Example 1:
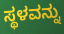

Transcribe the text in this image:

ಸ್ಥಳವನ್ನು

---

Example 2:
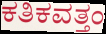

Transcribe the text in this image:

ಕತಿಕವತ್ತಂ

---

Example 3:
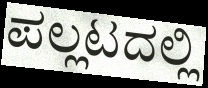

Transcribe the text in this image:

ಪಲ್ಲಟದಲ್ಲಿ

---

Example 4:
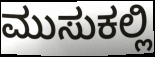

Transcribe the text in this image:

ಮುಸುಕಲ್ಲಿ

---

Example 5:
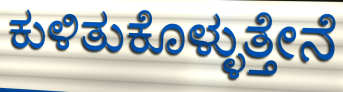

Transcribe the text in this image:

ಕುಳಿತುಕೊಳ್ಳುತ್ತೇನೆ